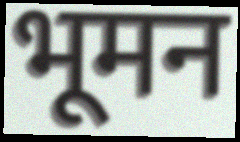
भूमन